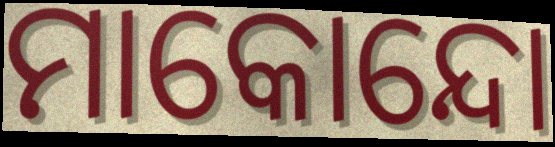
ମାକୋନ୍ଦୋ